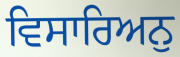
ਵਿਸਾਰਿਅਨੁ